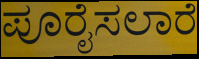
ಪೂರೈಸಲಾರೆ